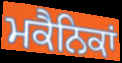
ਮਕੈਨਿਕਾਂ